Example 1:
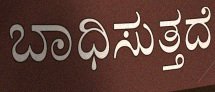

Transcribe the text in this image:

ಬಾಧಿಸುತ್ತದೆ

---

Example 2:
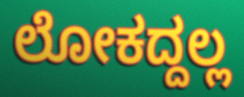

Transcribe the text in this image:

ಲೋಕದ್ದಲ್ಲ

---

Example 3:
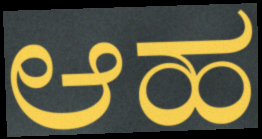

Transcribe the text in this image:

ಆಹ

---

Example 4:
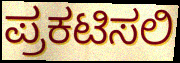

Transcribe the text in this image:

ಪ್ರಕಟಿಸಲಿ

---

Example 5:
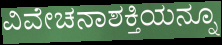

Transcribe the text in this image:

ವಿವೇಚನಾಶಕ್ತಿಯನ್ನೂ